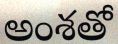
అంశతో